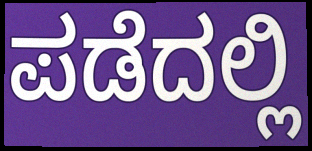
ಪಡೆದಲ್ಲಿ